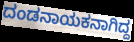
ದಂಡನಾಯಕನಾಗಿದ್ದ